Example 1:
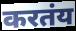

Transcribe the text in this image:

करतंय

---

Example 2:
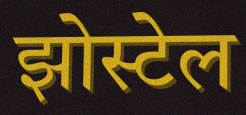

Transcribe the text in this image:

झोस्टेल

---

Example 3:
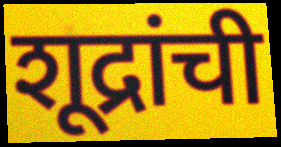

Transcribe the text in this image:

शूद्रांची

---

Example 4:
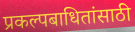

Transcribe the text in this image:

प्रकल्पबाधितांसाठी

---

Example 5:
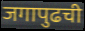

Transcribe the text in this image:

जगापुढची